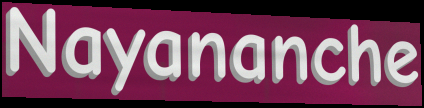
Nayananche